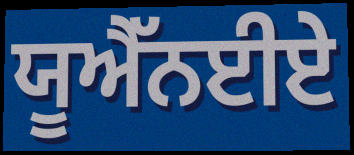
ਯੂਐੱਨਈਏ